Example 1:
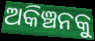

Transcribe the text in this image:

ଅକିଞ୍ଚନକୁ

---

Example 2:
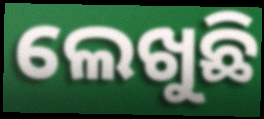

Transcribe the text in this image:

ଲେଖୁଛି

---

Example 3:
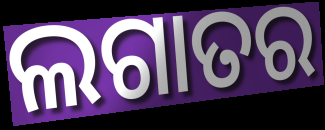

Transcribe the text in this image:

ଲଗାତର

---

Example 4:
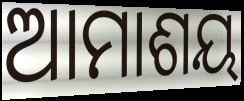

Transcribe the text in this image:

ଆମାଶୟ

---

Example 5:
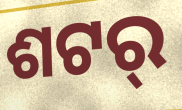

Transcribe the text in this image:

ଶଟର୍